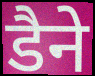
डैने